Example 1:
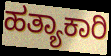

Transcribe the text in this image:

ಹತ್ಯಾಕಾರಿ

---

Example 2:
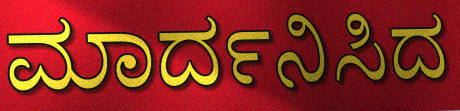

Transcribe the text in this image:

ಮಾರ್ದನಿಸಿದ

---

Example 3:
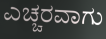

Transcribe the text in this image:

ಎಚ್ಚರವಾಗು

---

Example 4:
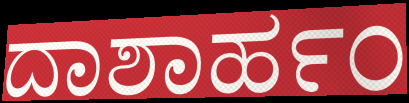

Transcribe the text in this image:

ದಾಶಾರ್ಹಂ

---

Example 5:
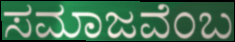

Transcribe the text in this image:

ಸಮಾಜವೆಂಬ